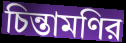
চিন্তামণির